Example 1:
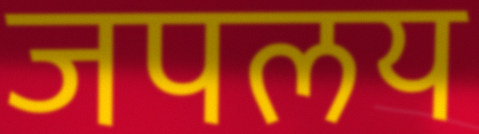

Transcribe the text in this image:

जपलय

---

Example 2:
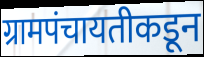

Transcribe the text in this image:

ग्रामपंचायतीकडून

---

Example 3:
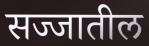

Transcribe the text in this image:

सज्जातील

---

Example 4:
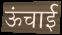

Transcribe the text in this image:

ऊंचाई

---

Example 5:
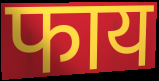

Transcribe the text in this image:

फाय